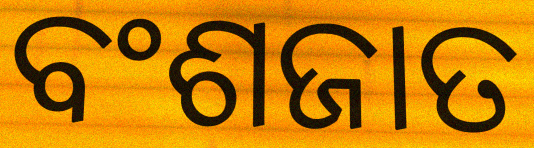
ବଂଶଜାତ